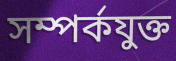
সম্পৰ্কযুক্ত